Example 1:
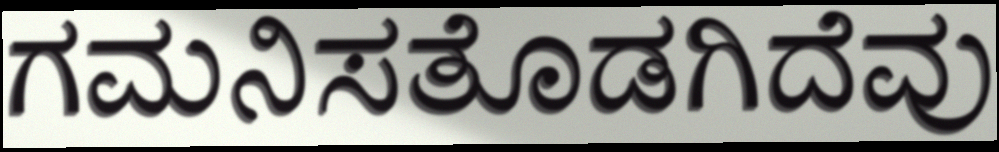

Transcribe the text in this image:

ಗಮನಿಸತೊಡಗಿದೆವು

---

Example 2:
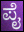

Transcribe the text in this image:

ಪೈ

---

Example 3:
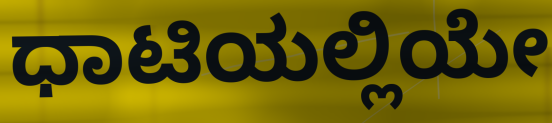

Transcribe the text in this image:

ಧಾಟಿಯಲ್ಲಿಯೇ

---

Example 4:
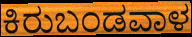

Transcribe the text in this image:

ಕಿರುಬಂಡವಾಳ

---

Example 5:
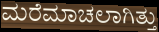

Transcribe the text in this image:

ಮರೆಮಾಚಲಾಗಿತ್ತು